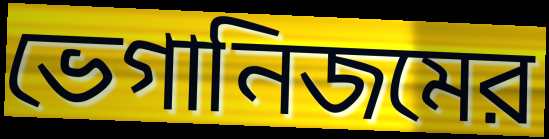
ভেগানিজমের